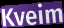
Kveim